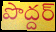
పొద్దర్